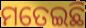
ମତେଇଛି